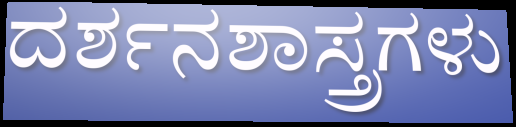
ದರ್ಶನಶಾಸ್ತ್ರಗಳು